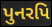
પુનરપિ